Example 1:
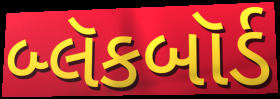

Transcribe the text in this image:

બ્લૅકબૉર્ડ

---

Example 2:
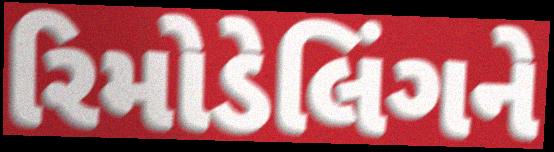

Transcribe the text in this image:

રિમોડેલિંગને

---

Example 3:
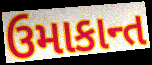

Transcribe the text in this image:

ઉમાકાન્ત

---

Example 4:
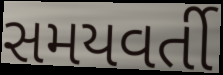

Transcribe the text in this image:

સમયવર્તી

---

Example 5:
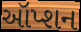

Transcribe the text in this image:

ઑપ્શન